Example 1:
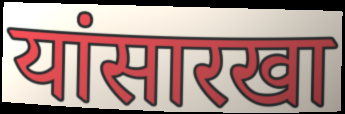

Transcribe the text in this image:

यांसारखा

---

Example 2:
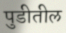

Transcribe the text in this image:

पुडीतील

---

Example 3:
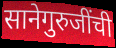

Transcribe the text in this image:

सानेगुरुजींची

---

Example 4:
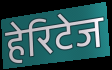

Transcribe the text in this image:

हेरिटेज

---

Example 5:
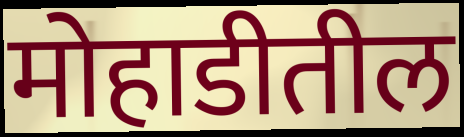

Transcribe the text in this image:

मोहाडीतील